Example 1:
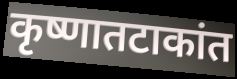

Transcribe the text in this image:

कृष्णातटाकांत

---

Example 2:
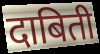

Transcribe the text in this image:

दाबिती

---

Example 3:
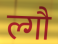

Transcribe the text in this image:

ल्गौ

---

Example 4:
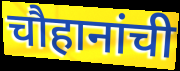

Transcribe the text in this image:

चौहानांची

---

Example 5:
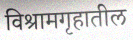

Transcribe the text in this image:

विश्रामगृहातील